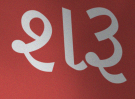
શરૂ